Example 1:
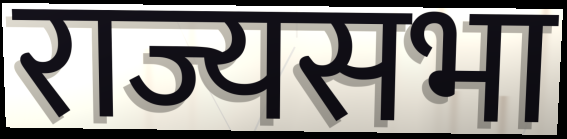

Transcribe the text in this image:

राज्यसभा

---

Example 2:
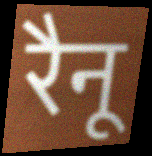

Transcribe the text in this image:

रैनू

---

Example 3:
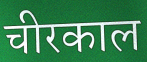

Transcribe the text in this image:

चीरकाल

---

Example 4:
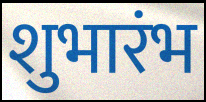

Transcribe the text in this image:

शुभारंभ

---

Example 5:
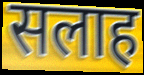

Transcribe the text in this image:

सलाह